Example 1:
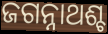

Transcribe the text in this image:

ଜଗନ୍ନାଥଶ୍ଚ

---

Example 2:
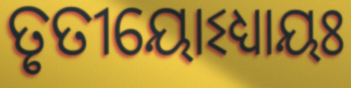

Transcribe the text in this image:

ତୃତୀୟୋଽଧ୍ୟାୟଃ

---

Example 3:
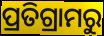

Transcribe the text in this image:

ପ୍ରତିଗ୍ରାମରୁ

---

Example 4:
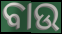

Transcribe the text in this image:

ବାଉ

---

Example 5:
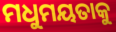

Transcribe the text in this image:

ମଧୁମୟତାକୁ